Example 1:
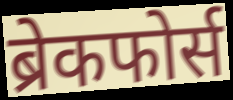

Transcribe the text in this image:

ब्रेकफोर्स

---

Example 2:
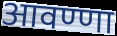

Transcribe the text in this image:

आवण्णा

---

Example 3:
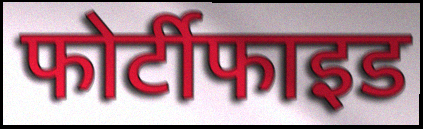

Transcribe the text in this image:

फोर्टीफाइड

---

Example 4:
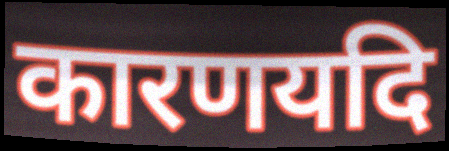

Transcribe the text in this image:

कारणयदि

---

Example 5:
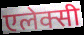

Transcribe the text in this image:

एलेक्सी